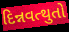
દિન્નવત્થુતો